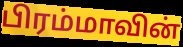
பிரம்மாவின்